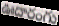
ఊదారంగు